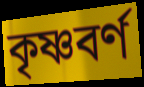
কৃষ্ণবর্ণ